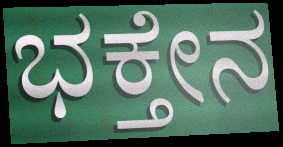
ಭಕ್ತೇನ